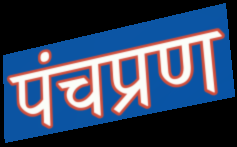
पंचप्रण